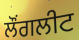
ਲੌਂਗਲੀਟ